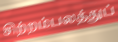
சிற்றம்பலத்துப்